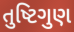
તુષ્ટિગુણ